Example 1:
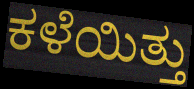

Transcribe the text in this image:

ಕಳೆಯಿತ್ತು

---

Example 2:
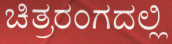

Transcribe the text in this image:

ಚಿತ್ರರಂಗದಲ್ಲಿ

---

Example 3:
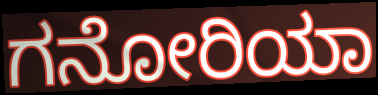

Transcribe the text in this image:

ಗನೋರಿಯಾ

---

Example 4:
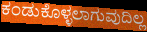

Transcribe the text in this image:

ಕಂಡುಕೊಳ್ಳಲಾಗುವುದಿಲ್ಲ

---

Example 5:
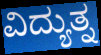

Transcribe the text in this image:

ವಿದ್ಯುತ್ನ